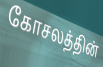
கோசலத்தின்